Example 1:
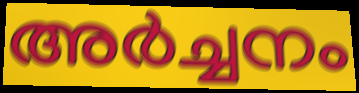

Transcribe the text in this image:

അർച്ചനം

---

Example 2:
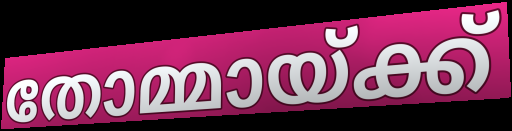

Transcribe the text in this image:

തോമ്മായ്ക്ക്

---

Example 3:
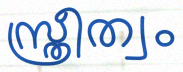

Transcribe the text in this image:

സ്ത്രീത്വം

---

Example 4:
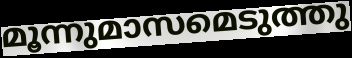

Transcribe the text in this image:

മൂന്നുമാസമെടുത്തു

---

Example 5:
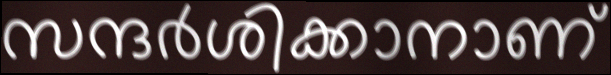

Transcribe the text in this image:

സന്ദർശിക്കാനാണ്